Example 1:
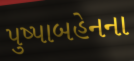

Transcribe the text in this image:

પુષ્પાબહેનના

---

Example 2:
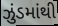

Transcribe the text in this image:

ઝુંડમાંથી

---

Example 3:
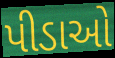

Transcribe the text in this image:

પીડાઓ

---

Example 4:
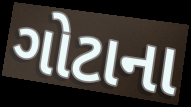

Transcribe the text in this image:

ગોટાના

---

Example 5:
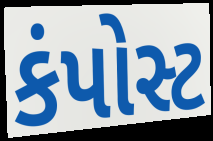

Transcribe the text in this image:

કંપોસ્ટ